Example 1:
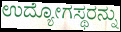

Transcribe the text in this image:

ಉದ್ಯೋಗಸ್ಥರನ್ನು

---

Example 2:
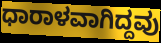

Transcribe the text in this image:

ಧಾರಾಳವಾಗಿದ್ದವು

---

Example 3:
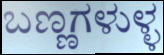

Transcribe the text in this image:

ಬಣ್ಣಗಳುಳ್ಳ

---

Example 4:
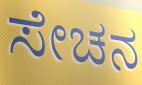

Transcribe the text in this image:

ಸೇಚನ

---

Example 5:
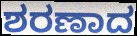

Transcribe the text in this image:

ಶರಣಾದ